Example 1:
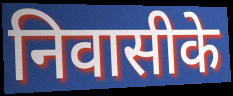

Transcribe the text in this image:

निवासीके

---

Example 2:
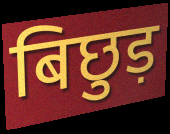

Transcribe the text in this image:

बिछुड़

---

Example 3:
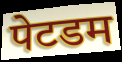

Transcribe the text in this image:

पेटडम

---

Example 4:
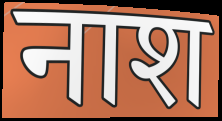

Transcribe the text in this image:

नाश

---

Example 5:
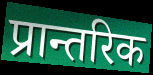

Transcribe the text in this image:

प्रान्तरिक